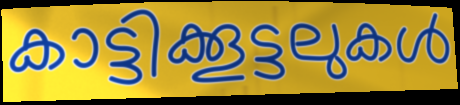
കാട്ടിക്കൂട്ടലുകൾ